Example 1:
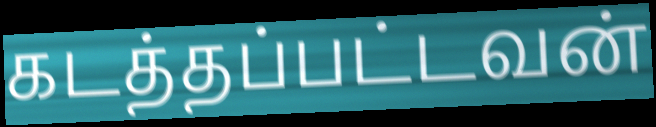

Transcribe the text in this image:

கடத்தப்பட்டவன்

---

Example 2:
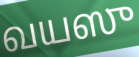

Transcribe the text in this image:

வயஸு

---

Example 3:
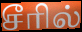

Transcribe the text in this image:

சீரில்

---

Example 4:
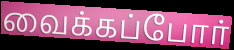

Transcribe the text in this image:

வைக்கப்போர்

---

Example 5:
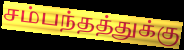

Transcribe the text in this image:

சம்பந்தத்துக்கு